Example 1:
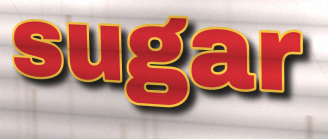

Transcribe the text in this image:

sugar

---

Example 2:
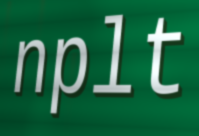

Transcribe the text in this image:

nplt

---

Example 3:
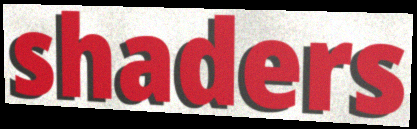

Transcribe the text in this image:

shaders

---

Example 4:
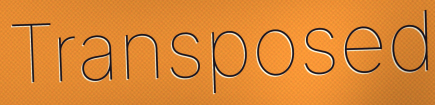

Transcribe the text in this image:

Transposed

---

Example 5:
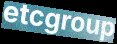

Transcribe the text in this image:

etcgroup